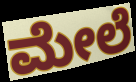
ಮೇಲೆ